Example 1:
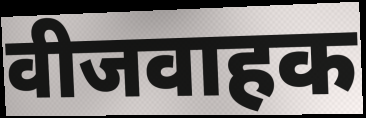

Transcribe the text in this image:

वीजवाहक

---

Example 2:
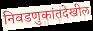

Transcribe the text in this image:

निवडणुकांतदेखील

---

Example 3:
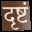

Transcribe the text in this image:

दृष्टं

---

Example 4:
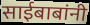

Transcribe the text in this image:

साईबाबांनी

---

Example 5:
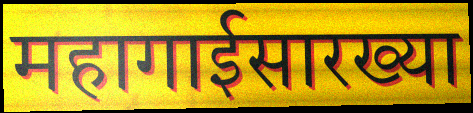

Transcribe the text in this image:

महागाईसारख्या